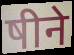
षीने